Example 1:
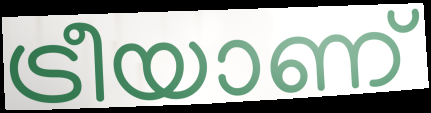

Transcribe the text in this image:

ട്രീയാണ്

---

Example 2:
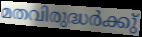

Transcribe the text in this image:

മതവിരുദ്ധർക്കു്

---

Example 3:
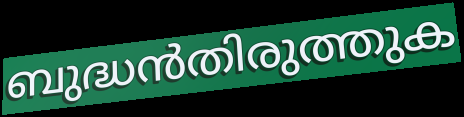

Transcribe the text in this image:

ബുദ്ധൻതിരുത്തുക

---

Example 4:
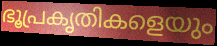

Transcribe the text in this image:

ഭൂപ്രകൃതികളെയും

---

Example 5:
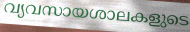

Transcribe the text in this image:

വ്യവസായശാലകളുടെ